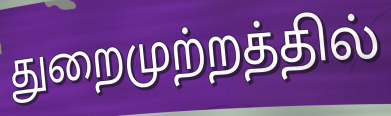
துறைமுற்றத்தில்